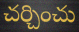
చర్చించు